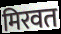
मिरवत